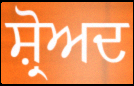
ਸ਼੍ਰੋਅਦ